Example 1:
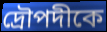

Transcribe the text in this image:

দ্রৌপদীকে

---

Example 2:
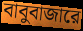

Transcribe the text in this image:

বাবুবাজারে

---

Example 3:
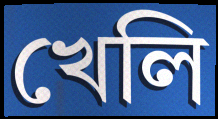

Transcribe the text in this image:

খেলি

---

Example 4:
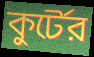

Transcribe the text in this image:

কুর্টের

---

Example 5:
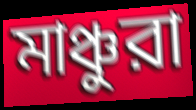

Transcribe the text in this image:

মাঞ্চুরা